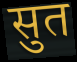
सुत